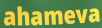
ahameva